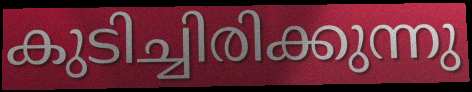
കുടിച്ചിരിക്കുന്നു